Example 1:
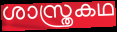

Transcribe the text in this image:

ശാസ്ത്രകഥ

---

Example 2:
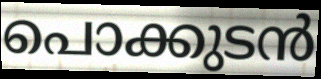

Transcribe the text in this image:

പൊക്കുടൻ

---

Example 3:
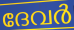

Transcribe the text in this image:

ദേവർ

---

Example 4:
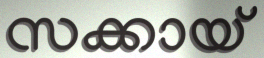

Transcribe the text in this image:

സക്കായ്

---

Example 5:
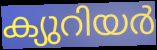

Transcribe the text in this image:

ക്യുറിയർ